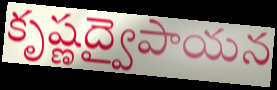
కృష్ణద్వైపాయన